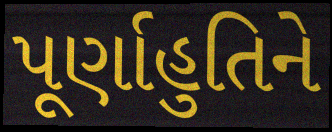
પૂર્ણાહુતિને